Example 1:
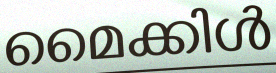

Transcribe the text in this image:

മൈക്കിൾ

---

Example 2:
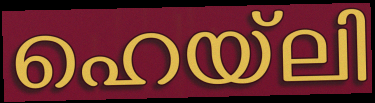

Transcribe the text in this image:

ഹെയ്‌ലി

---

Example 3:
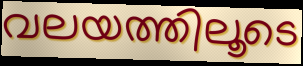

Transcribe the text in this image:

വലയത്തിലൂടെ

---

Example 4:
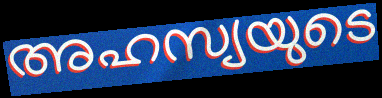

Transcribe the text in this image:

അഹസ്യയുടെ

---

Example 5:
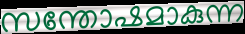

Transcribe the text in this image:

സന്തോഷമാകുന്ന